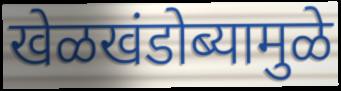
खेळखंडोब्यामुळे